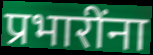
प्रभारींना